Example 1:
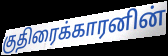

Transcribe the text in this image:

குதிரைக்காரனின்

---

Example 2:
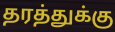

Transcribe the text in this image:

தரத்துக்கு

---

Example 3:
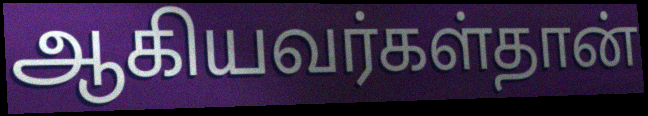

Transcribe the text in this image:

ஆகியவர்கள்தான்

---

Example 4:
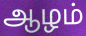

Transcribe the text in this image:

ஆழம்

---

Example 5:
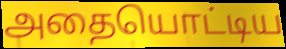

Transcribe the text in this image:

அதையொட்டிய